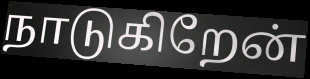
நாடுகிறேன்